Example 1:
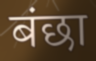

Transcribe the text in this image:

बंछा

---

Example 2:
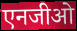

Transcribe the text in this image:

एनजीओ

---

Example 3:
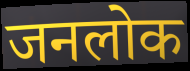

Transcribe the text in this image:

जनलोक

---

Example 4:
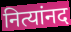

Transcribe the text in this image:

नित्यांनद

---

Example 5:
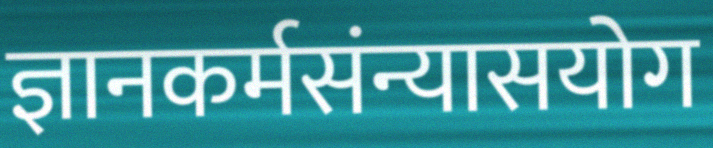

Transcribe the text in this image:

ज्ञानकर्मसंन्यासयोग